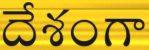
దేశంగా